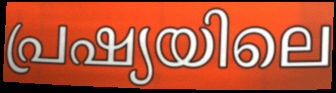
പ്രഷ്യയിലെ